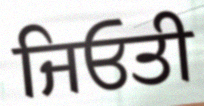
ਜਿਓਤੀ